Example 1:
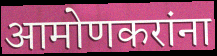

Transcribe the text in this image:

आमोणकरांना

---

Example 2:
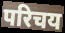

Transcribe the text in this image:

परिचय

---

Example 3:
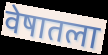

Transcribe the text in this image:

वेषातला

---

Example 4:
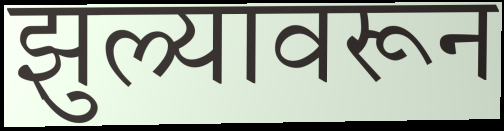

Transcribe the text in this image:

झुल्यावरून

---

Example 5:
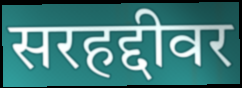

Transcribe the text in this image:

सरहद्दीवर